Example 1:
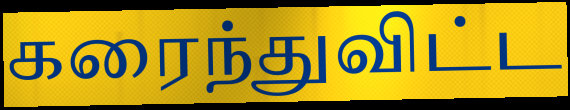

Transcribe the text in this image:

கரைந்துவிட்ட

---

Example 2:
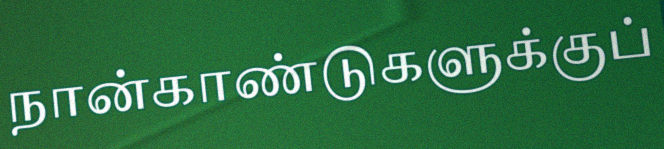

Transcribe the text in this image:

நான்காண்டுகளுக்குப்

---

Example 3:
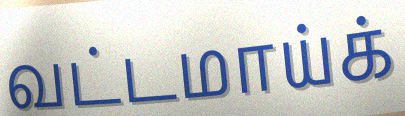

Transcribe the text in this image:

வட்டமாய்க்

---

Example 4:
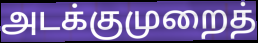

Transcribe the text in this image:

அடக்குமுறைத்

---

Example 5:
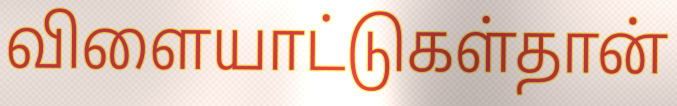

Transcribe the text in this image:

விளையாட்டுகள்தான்